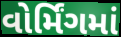
વોર્મિંગમાં